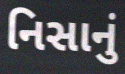
નિસાનું